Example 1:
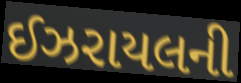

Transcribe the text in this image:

ઈઝરાયલની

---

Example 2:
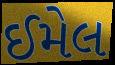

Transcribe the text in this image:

ઈમેલ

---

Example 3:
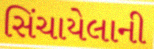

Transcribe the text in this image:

સિંચાયેલાની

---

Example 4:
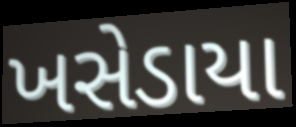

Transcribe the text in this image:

ખસેડાયા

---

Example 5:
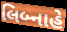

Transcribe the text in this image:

લિબ્નાહે